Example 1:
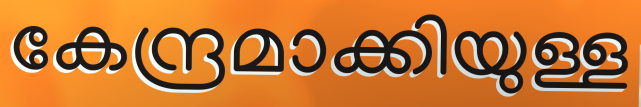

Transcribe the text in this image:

കേന്ദ്രമാക്കിയുള്ള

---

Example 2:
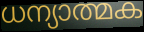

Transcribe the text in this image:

ധന്യാത്മക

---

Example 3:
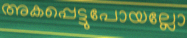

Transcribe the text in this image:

അകപ്പെട്ടുപോയല്ലോ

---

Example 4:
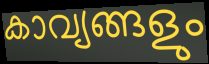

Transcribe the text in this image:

കാവ്യങ്ങളും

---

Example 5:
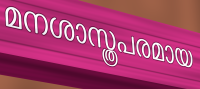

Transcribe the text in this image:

മനശാസ്ത്രപരമായ